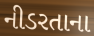
નીડરતાના